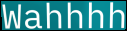
Wahhhh